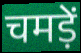
चमड़ें